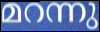
മറന്നു